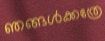
ഞങ്ങൾക്കത്രേ